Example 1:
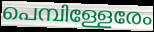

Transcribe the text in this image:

പെമ്പിള്ളേരേം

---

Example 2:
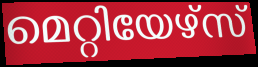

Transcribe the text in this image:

മെറ്റിയേഴ്സ്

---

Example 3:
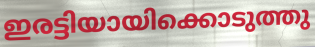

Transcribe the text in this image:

ഇരട്ടിയായിക്കൊടുത്തു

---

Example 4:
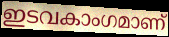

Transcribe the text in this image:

ഇടവകാംഗമാണ്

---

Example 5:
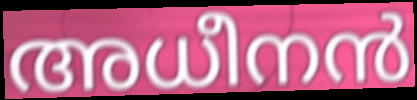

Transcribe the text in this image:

അധീനൻ